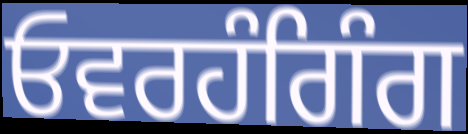
ਓਵਰਹੰਗਿੰਗ